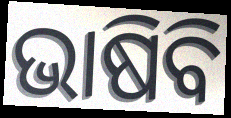
ଭାଷିବି